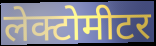
लेक्टोमीटर